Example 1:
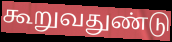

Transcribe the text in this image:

கூறுவதுண்டு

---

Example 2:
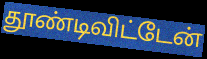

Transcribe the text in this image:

தூண்டிவிட்டேன்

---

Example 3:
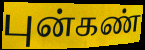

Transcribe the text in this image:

புன்கண்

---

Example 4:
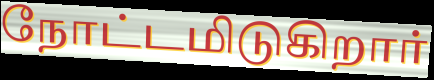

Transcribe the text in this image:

நோட்டமிடுகிறார்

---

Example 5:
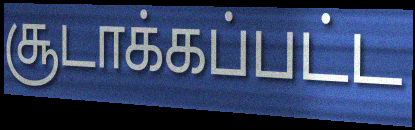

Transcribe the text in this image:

சூடாக்கப்பட்ட